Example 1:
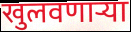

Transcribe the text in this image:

खुलवणाऱ्या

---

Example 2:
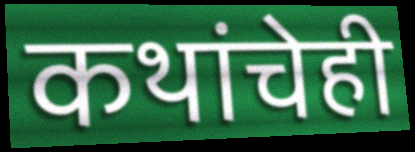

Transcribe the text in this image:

कथांचेही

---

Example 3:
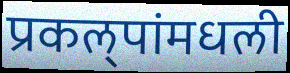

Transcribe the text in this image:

प्रकल्पांमधली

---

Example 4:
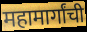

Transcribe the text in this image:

महामार्गांची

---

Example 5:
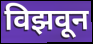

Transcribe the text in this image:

विझवून